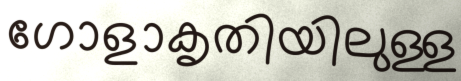
ഗോളാകൃതിയിലുള്ള